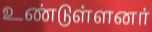
உண்டுள்ளனர்